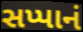
સપ્પાનં